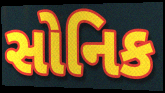
સોનિક